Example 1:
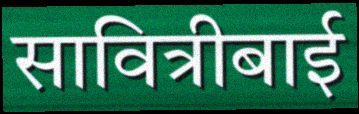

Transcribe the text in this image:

सावित्रीबाई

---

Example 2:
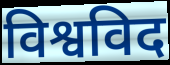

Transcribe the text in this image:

विश्वविद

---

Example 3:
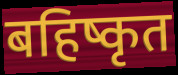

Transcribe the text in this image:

बहिष्कृत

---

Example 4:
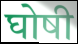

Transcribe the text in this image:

घोषी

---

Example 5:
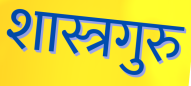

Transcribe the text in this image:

शास्त्रगुरु